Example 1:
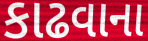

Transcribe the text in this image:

કાઢવાના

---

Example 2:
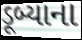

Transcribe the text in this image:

ડૂબ્યાના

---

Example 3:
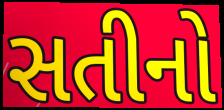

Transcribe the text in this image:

સતીનો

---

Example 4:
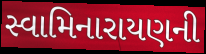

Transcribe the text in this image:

સ્વામિનારાયણની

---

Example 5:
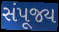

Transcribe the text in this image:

સંપૂજ્ય